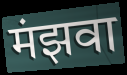
मंझवा